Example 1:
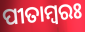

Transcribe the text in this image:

ପୀତାମ୍ୱରଃ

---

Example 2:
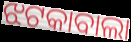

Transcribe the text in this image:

ଝଟକାବାଲା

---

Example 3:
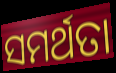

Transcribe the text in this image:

ସମର୍ଥତା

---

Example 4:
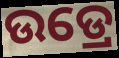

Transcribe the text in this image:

ଉଡ୍ରେ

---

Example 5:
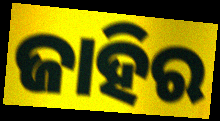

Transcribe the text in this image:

ଜାହିର